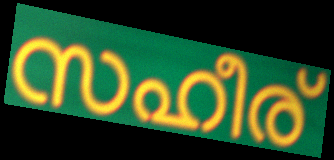
സഹീര്